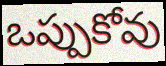
ఒప్పుకోవు